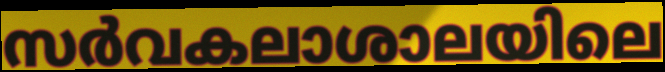
സർവകലാശാലയിലെ